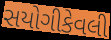
સયોગીકેવલી